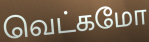
வெட்கமோ